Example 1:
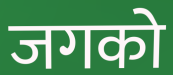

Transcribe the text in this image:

जगको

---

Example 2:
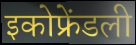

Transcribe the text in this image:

इकोफ्रेंडली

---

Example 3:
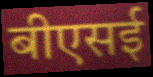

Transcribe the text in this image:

बीएसई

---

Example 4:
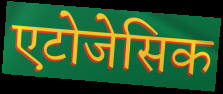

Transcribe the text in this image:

एटोजेसिक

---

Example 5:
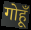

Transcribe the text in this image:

गोहूँ